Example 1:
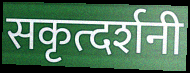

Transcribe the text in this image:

सकृत्दर्शनी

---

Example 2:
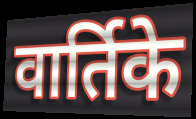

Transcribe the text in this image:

वार्तिके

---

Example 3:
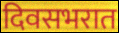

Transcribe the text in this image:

दिवसभरात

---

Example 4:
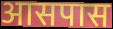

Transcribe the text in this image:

आसपास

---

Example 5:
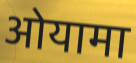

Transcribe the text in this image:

ओयामा